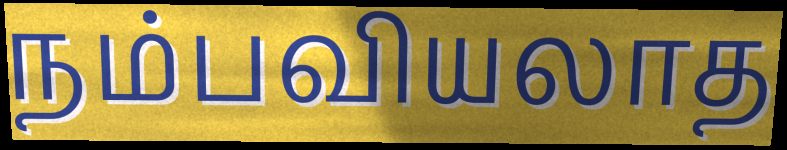
நம்பவியலாத